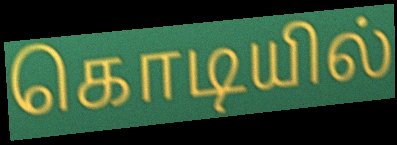
கொடியில்